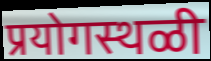
प्रयोगस्थळी